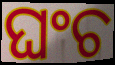
ଘଂଚ